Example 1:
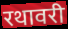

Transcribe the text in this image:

रथावरी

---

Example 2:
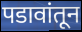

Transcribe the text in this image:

पडावांतून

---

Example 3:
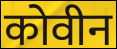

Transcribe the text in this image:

कोवीन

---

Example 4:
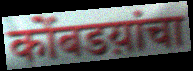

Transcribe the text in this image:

कोंबडय़ांचा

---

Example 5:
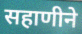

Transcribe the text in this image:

सहाणीने